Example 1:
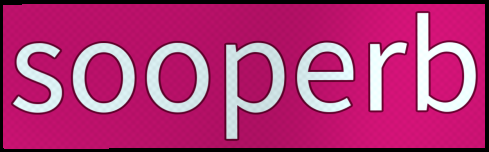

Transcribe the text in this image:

sooperb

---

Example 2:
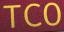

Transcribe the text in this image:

TCO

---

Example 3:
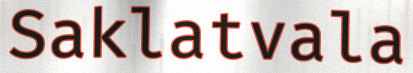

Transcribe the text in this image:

Saklatvala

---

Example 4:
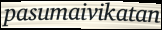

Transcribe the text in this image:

pasumaivikatan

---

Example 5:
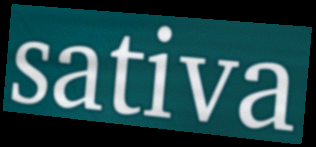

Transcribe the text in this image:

sativa